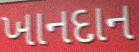
ખાનદાન